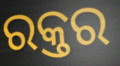
ରକ୍ତର